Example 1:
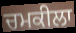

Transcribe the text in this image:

ਚਮਕੀਲਾ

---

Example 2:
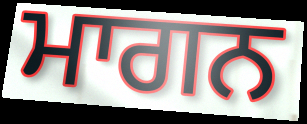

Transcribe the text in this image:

ਮਾਗਨ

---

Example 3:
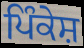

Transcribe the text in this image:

ਪਿੰਕੇਸ਼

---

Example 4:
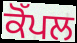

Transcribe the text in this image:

ਕੋੱਪਲ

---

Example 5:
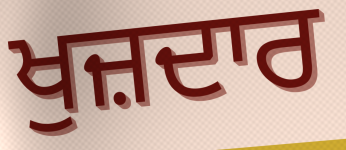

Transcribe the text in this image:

ਖੁਜ਼ਦਾਰ